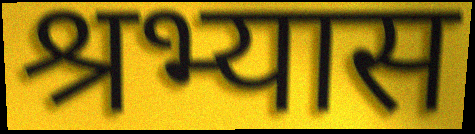
श्रभ्यास